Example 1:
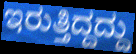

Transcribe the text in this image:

ಇರುತ್ತಿದ್ದದ್ದು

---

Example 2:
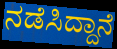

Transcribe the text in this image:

ನಡೆಸಿದ್ದಾನೆ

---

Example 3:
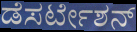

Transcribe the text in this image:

ಡೆಸರ್ಟೇಶನ್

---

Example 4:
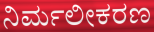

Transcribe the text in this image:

ನಿರ್ಮಲೀಕರಣ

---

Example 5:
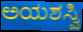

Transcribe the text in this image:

ಅಯಶಸ್ವಿ